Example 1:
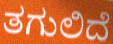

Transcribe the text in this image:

ತಗುಲಿದೆ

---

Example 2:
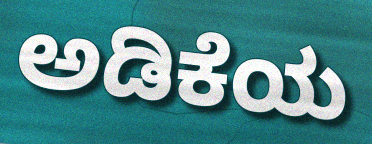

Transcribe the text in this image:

ಅಡಿಕೆಯ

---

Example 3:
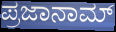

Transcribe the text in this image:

ಪ್ರಜಾನಾಮ್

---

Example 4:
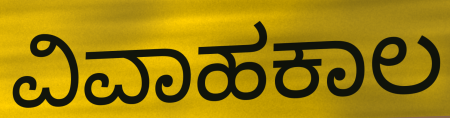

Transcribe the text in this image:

ವಿವಾಹಕಾಲ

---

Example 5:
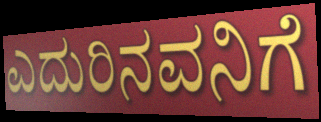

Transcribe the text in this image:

ಎದುರಿನವನಿಗೆ